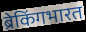
ब्रेकिंगभारत